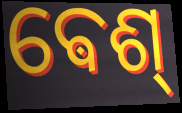
ଵେଶ୍